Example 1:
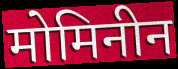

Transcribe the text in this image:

मोमिनीन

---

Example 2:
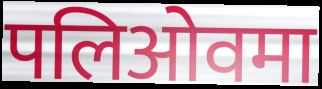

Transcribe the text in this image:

पलिओवमा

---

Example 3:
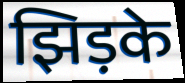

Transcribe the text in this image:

झिड़के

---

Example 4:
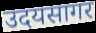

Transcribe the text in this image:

उदयसागर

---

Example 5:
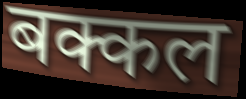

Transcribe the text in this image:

बक्कल